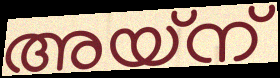
അയ്ന്